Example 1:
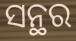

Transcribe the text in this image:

ସନ୍ଥର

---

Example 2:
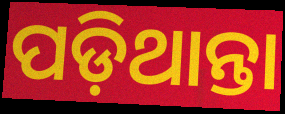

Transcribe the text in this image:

ପଡ଼ିଥାନ୍ତା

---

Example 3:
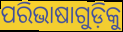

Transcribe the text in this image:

ପରିଭାଷାଗୁଡ଼ିକୁ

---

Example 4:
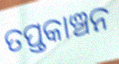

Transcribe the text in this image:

ତପ୍ତକାଞ୍ଚନ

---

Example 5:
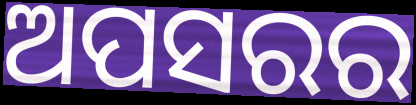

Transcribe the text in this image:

ଅପସରର